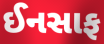
ઈનસાફ